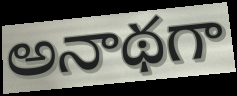
అనాథగా